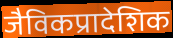
जैविकप्रादेशिक